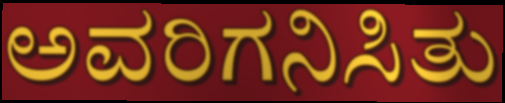
ಅವರಿಗನಿಸಿತು